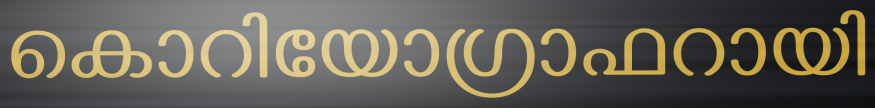
കൊറിയോഗ്രാഫറായി